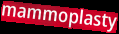
mammoplasty